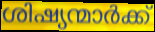
ശിഷ്യന്മാർക്ക്